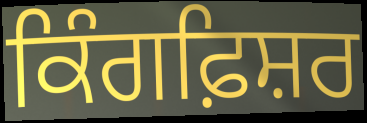
ਕਿੰਗਫ਼ਿਸ਼ਰ